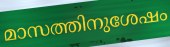
മാസത്തിനുശേഷം